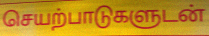
செயற்பாடுகளுடன்